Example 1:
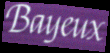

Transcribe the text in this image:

Bayeux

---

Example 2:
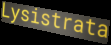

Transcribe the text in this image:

Lysistrata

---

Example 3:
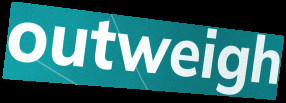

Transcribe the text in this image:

outweigh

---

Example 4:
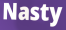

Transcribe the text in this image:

Nasty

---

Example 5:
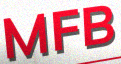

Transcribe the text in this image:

MFB